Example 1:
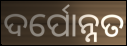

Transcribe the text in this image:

ଦର୍ପୋନ୍ନତ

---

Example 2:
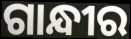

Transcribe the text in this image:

ଗାନ୍ଧୀର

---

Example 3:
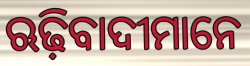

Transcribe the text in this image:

ଋଢ଼ିବାଦୀମାନେ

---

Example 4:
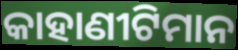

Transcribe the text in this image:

କାହାଣୀଟିମାନ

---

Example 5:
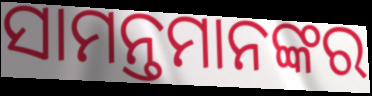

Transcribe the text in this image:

ସାମନ୍ତମାନଙ୍କର